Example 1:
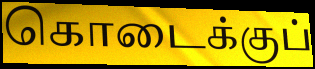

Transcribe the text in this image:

கொடைக்குப்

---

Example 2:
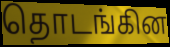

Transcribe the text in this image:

தொடங்கின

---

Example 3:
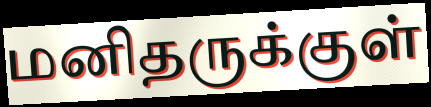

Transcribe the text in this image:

மனிதருக்குள்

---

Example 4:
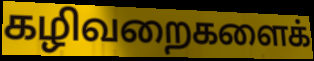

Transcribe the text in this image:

கழிவறைகளைக்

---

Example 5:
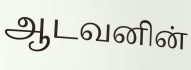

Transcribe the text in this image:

ஆடவனின்